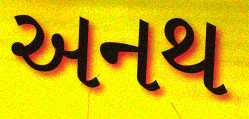
અનથ